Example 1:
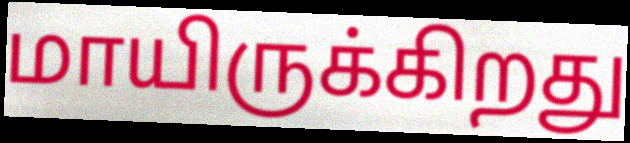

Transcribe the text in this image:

மாயிருக்கிறது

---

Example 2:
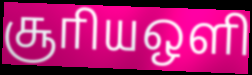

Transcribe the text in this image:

சூரியஒளி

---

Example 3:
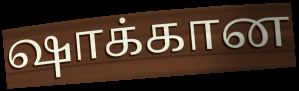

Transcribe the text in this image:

ஷாக்கான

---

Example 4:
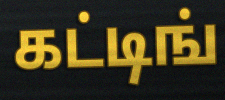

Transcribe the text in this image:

கட்டிங்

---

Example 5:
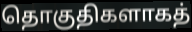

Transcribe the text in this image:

தொகுதிகளாகத்